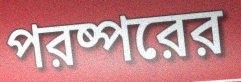
পরষ্পরের